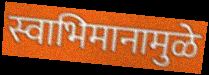
स्वाभिमानामुळे